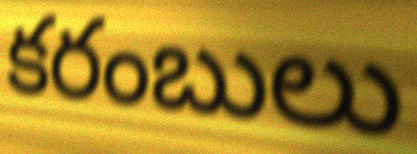
కరంబులు